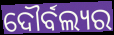
ଦୌର୍ବଲ୍ୟର